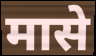
मासे